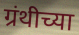
ग्रंथीच्या